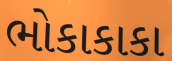
ભોકાકાકા